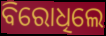
ବିରୋଧିଲେ